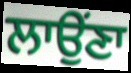
ਲਾਉਂਣਾ